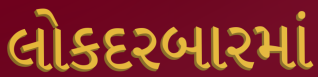
લોકદરબારમાં